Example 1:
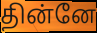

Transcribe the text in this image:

தின்னே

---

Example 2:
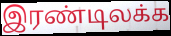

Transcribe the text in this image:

இரண்டிலக்க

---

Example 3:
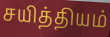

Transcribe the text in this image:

சயித்தியம்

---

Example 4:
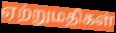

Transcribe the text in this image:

ஏற்றுமதிகள்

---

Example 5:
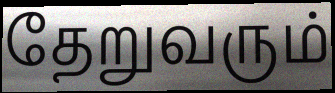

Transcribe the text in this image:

தேறுவரும்